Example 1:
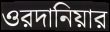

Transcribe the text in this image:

ওরদানিয়ার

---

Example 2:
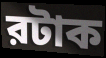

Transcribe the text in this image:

রটাক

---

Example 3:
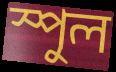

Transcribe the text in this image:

স্পুল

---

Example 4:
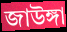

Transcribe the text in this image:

জাউঙ্গা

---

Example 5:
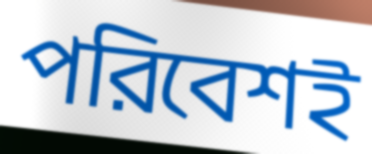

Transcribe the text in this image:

পরিবেশই